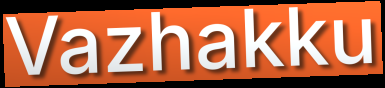
Vazhakku